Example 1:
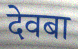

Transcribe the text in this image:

देवबा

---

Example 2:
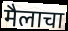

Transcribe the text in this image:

मैलाचा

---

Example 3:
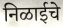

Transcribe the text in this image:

निळाईचे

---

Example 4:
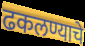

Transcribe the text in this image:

ढकलण्याचे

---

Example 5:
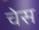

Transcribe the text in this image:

चेस